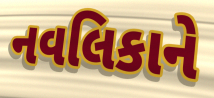
નવલિકાને